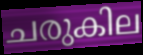
ചരുകില